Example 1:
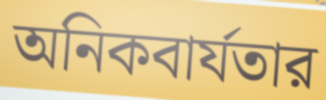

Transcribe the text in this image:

অনিকবার্যতার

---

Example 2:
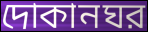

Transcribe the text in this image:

দোকানঘর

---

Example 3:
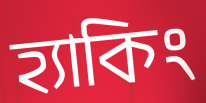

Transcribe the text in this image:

হ্যাকিং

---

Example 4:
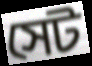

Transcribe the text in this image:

সেট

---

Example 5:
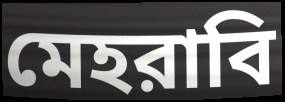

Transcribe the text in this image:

মেহরাবি